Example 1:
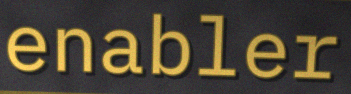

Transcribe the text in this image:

enabler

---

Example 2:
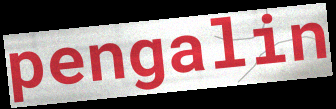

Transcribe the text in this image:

pengalin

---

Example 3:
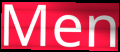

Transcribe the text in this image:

Men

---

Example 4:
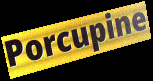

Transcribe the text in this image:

Porcupine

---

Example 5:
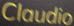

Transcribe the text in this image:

Claudio